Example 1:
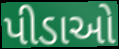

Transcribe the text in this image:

પીડાઓ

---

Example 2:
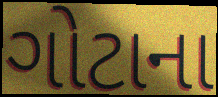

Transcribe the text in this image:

ગોટાના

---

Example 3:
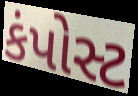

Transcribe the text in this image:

કંપોસ્ટ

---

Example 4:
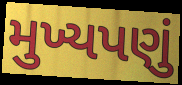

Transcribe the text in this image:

મુખ્યપણું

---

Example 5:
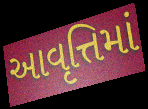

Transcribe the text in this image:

આવૃત્તિમાં